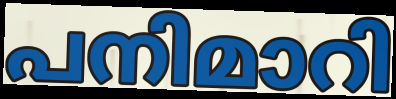
പനിമാറി